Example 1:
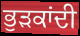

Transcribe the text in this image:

ਭੁੜਕਾਂਦੀ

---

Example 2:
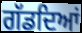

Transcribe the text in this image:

ਗੱਡਦਿਆਂ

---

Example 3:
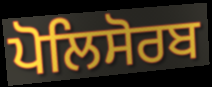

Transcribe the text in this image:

ਪੋਲਿਸੋਰਬ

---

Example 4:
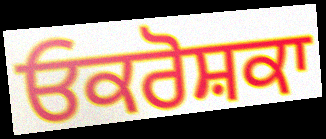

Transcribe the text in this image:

ਓਕਰੋਸ਼ਕਾ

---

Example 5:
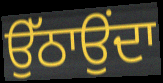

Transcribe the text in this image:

ਉੱਠਾਉਂਦਾ